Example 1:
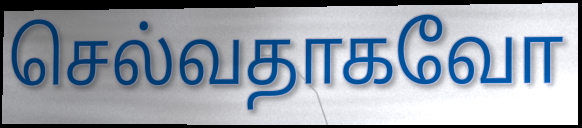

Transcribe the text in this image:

செல்வதாகவோ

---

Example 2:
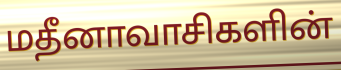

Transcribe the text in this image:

மதீனாவாசிகளின்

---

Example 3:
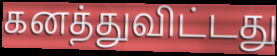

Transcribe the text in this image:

கனத்துவிட்டது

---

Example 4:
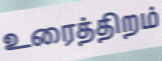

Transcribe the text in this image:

உரைத்திறம்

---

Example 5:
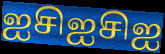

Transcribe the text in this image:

ஐசிஐசிஐ